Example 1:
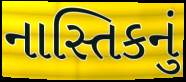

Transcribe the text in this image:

નાસ્તિકનું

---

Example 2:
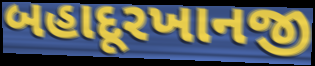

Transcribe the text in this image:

બહાદૂરખાનજી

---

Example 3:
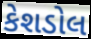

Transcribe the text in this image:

કેશડોલ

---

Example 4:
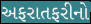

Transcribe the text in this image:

અફરાતફરીનો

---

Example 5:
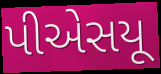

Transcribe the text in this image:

પીએસયૂ